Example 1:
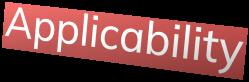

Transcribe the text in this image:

Applicability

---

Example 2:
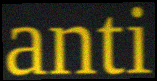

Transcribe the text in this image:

anti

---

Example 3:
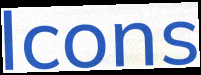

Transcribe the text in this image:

Icons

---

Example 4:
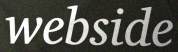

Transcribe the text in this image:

webside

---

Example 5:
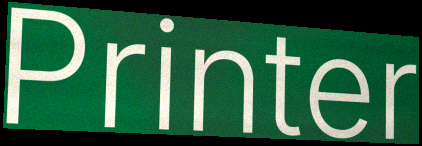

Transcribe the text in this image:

Printer